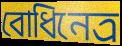
বোধিনেত্ৰ